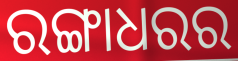
ରଙ୍ଗାଧରର